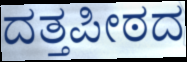
ದತ್ತಪೀಠದ